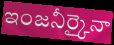
ఇంజనీర్కైనా